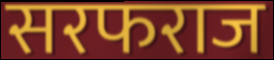
सरफराज